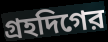
গ্রহদিগের